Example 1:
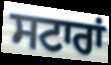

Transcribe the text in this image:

ਸਟਾਰਾਂ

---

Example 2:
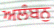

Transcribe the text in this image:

ਅਲੰਬਨੁ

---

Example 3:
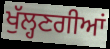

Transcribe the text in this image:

ਖੁੱਲ੍ਹਣਗੀਆਂ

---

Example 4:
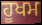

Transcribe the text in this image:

ਹੂਖਮ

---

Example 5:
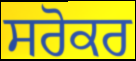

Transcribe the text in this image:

ਸਰੋਕਰ